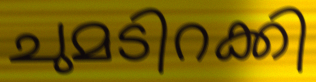
ചുമടിറക്കി